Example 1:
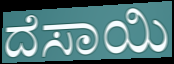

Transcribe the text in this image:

ದೆಸಾಯಿ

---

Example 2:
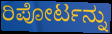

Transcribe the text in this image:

ರಿಪೋರ್ಟನ್ನು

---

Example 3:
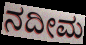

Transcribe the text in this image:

ನದೀಮ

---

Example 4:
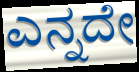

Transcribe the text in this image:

ಎನ್ನದೇ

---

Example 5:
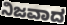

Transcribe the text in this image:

ನಿಜವಾದ